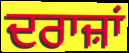
ਦਰਾਜ਼ਾਂ